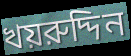
খয়রুদ্দিন